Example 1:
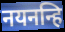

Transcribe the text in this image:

नयनन्हि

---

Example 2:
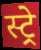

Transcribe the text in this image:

स्ट्रे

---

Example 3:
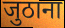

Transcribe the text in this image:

जुठाना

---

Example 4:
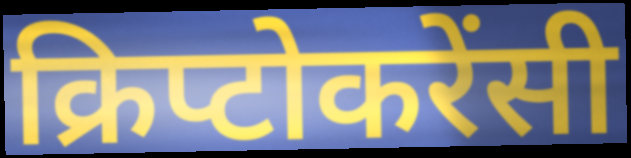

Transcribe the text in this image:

क्रिप्टोकरेंसी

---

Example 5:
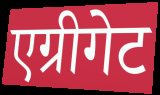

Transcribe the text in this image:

एग्रीगेट